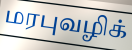
மரபுவழிக்